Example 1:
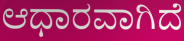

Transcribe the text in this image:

ಆಧಾರವಾಗಿದೆ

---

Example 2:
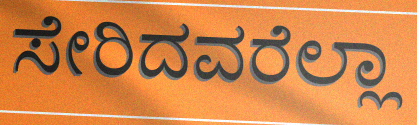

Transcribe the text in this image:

ಸೇರಿದವರೆಲ್ಲಾ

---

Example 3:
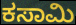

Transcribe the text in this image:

ಕಸಾಮಿ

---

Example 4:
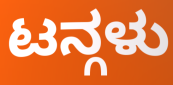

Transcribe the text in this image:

ಟನ್ಗಳು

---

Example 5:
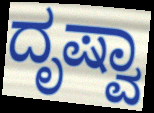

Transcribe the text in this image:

ದೃಷ್ವಾ